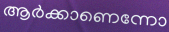
ആർക്കാണെന്നോ